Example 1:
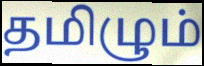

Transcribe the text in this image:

தமிழும்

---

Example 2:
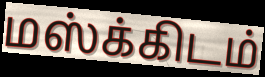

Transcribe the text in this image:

மஸ்க்கிடம்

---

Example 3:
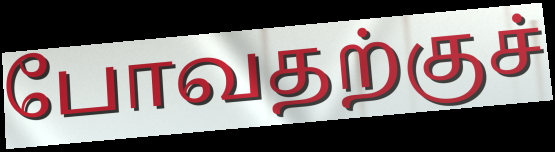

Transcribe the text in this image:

போவதற்குச்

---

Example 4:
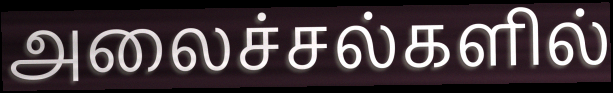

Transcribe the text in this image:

அலைச்சல்களில்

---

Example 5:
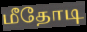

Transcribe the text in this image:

மீதோடி